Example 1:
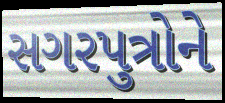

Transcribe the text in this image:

સગરપુત્રોને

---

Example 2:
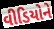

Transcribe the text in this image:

વીડિયોને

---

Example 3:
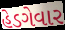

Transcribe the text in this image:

હેડગેવાર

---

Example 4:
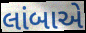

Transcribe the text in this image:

લાંબાએ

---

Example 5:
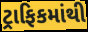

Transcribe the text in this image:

ટ્રાફિકમાંથી